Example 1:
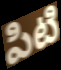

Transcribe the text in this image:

పిటి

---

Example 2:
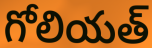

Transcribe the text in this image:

గోలియత్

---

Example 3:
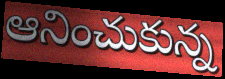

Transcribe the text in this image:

ఆనించుకున్న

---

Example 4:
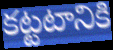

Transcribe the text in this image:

కట్టటానికి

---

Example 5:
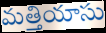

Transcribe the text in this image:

మత్తియాసు